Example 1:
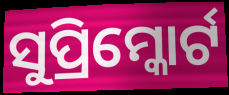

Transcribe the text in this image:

ସୁପ୍ରିମ୍କୋର୍ଟ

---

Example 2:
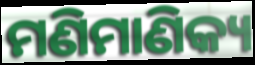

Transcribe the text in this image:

ମଣିମାଣିକ୍ୟ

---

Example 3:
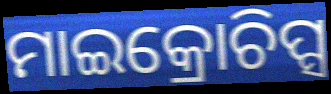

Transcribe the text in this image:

ମାଇକ୍ରୋଚିପ୍ସ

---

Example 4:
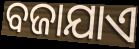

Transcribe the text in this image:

ବଜାଯାଏ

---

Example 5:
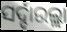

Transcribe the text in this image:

ସର୍ଦ୍ଦାଉଲ୍ଲା